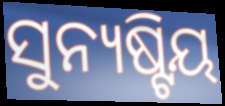
ସୁନ୍ୟଷ୍ଟିୟ